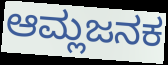
ಆಮ್ಲಜನಕ